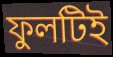
ফুলটিই